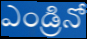
ఎండ్రినో